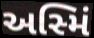
અસ્મિં